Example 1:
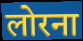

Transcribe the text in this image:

लोरना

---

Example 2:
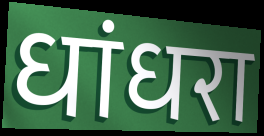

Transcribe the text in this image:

धांधरा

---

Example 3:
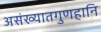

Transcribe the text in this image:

असंख्यातगुणहानि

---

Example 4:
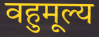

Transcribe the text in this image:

वहुमूल्य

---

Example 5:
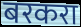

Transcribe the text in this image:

बरकरा